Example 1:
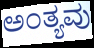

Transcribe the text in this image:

ಅಂತ್ಯವು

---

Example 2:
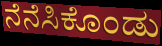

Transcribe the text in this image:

ನೆನೆಸಿಕೊಂಡು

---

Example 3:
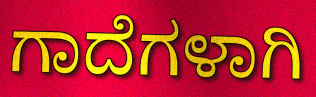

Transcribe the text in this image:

ಗಾದೆಗಳಾಗಿ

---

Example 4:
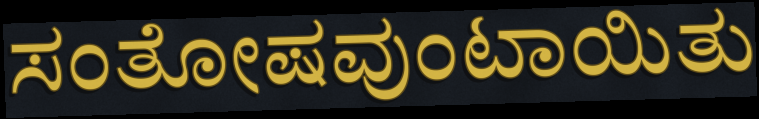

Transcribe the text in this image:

ಸಂತೋಷವುಂಟಾಯಿತು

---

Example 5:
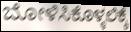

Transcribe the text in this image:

ಬೋಳಿಸಿಕೊಳ್ಳಲಿಕ್ಕೆ